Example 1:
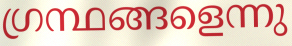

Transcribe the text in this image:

ഗ്രന്ഥങ്ങളെന്നു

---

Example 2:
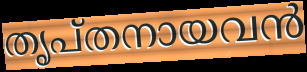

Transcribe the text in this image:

തൃപ്തനായവൻ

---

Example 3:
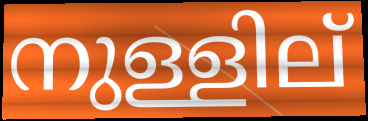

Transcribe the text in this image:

നുള്ളില്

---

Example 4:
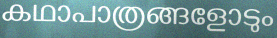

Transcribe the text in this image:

കഥാപാത്രങ്ങളോടും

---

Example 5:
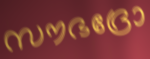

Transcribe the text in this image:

സൗഭദ്രോ